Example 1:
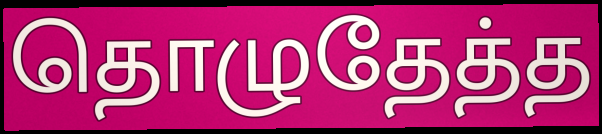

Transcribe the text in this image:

தொழுதேத்த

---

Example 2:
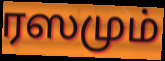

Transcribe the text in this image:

ரஸமும்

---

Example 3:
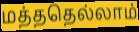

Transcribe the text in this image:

மத்ததெல்லாம்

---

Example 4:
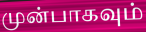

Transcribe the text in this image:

முன்பாகவும்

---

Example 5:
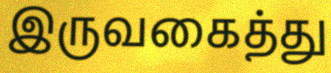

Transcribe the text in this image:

இருவகைத்து